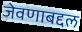
जेवणाबद्दल